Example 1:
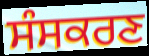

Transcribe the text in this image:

ਸੰਸਕਰਣ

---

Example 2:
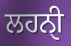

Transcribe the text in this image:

ਲਹਨੑੀ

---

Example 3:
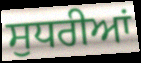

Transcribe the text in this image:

ਸੁਧਰੀਆਂ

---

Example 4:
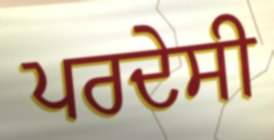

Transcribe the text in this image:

ਪਰਦੇਸੀ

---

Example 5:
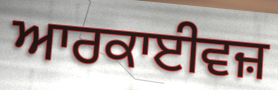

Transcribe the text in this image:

ਆਰਕਾਈਵਜ਼